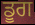
ਡੂਗ